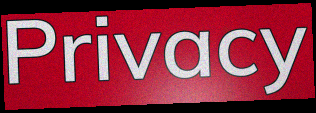
Privacy